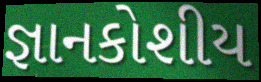
જ્ઞાનકોશીય